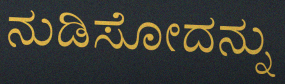
ನುಡಿಸೋದನ್ನು